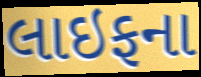
લાઇફના